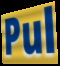
Pul